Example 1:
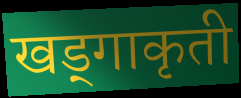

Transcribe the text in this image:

खड्गाकृती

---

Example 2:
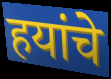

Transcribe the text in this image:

हयांचे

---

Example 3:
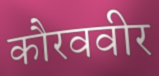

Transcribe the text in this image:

कौरववीर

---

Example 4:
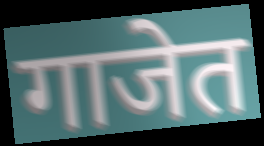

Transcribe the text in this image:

गाजेत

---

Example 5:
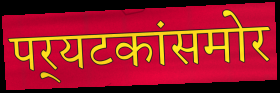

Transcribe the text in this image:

पर्यटकांसमोर